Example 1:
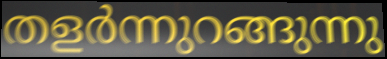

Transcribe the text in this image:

തളർന്നുറങ്ങുന്നു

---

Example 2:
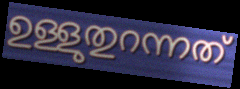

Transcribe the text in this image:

ഉള്ളുതുറന്നത്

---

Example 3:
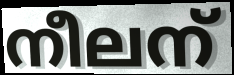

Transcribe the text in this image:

നീലന്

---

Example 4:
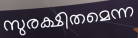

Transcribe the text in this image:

സുരക്ഷിതമെന്ന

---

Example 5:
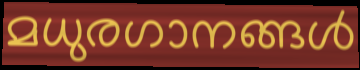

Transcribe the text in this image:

മധുരഗാനങ്ങൾ